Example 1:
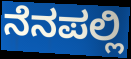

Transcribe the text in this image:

ನೆನಪಲ್ಲಿ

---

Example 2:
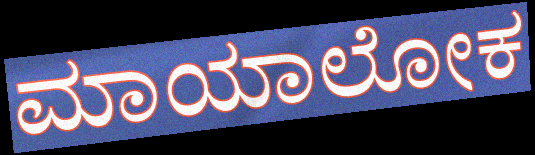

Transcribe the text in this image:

ಮಾಯಾಲೋಕ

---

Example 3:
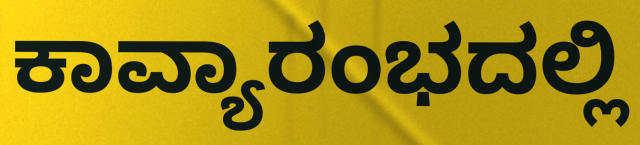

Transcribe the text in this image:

ಕಾವ್ಯಾರಂಭದಲ್ಲಿ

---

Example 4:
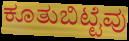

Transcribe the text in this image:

ಕೂತುಬಿಟ್ಟೆವು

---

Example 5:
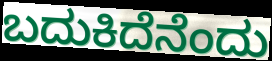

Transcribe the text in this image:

ಬದುಕಿದೆನೆಂದು